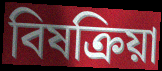
বিষক্রিয়া